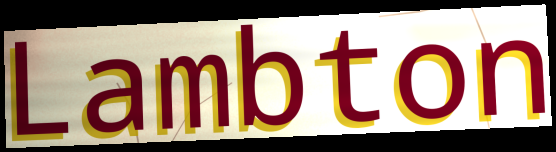
Lambton